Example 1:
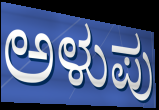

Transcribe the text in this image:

ಅಳುಪು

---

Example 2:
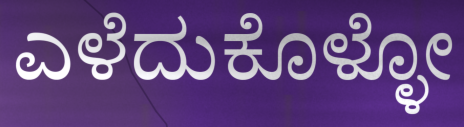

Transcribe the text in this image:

ಎಳೆದುಕೊಳ್ಳೋ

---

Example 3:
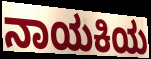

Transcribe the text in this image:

ನಾಯಕಿಯ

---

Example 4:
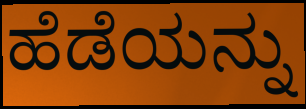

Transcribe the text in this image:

ಹೆಡೆಯನ್ನು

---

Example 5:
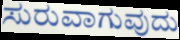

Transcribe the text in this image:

ಸುರುವಾಗುವುದು